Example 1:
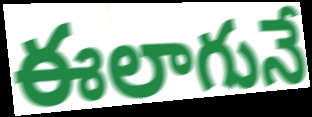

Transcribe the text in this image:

ఈలాగునే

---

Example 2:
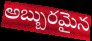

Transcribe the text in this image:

అబ్బురమైన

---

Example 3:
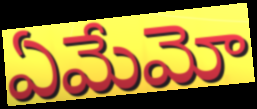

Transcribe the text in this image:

ఏమేమో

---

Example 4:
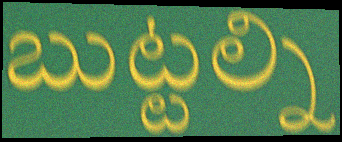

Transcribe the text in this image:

బుట్టల్ని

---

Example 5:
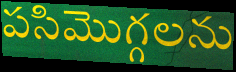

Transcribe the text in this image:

పసిమొగ్గలను